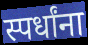
स्पर्धांना